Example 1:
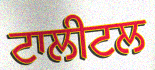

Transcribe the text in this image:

ਟਾਲੀਟਲ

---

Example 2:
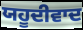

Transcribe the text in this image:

ਯਹੂਦੀਵਾਦ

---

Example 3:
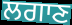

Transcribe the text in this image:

ਲਗਾਣ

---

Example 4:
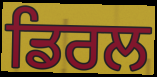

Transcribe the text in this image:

ਡਿਰਲ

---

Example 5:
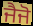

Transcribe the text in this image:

ਜੈਜੋ